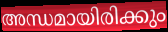
അന്ധമായിരിക്കും